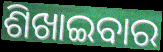
ଶିଖାଇବାର